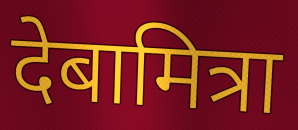
देबामित्रा